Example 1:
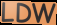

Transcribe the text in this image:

LDW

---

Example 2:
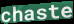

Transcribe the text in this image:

chaste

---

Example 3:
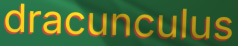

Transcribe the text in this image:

dracunculus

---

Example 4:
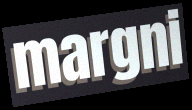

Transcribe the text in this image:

margni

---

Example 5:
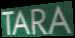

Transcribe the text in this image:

TARA